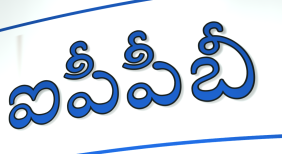
ఐపీపీబీ